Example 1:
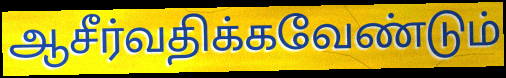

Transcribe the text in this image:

ஆசீர்வதிக்கவேண்டும்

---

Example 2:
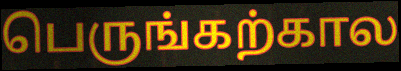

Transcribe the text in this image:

பெருங்கற்கால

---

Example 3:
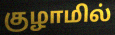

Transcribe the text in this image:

குழாமில்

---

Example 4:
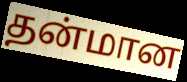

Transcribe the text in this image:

தன்மான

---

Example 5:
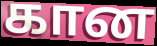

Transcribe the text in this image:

கான